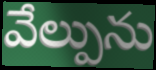
వేల్పును